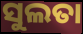
ସୁଲତା